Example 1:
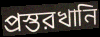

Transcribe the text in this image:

প্রস্তরখানি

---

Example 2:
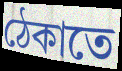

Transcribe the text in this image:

ঠেকাতে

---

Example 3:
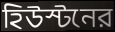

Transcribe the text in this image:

হিউস্টনের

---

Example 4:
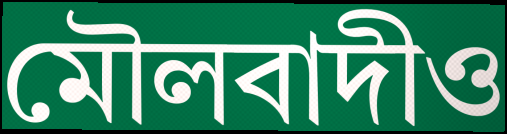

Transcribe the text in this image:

মৌলবাদীও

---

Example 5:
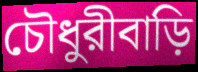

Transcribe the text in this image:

চৌধুরীবাড়ি